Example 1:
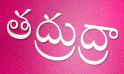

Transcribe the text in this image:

తద్రుద్రా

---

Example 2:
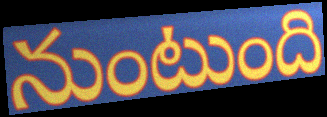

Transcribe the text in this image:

నుంటుంది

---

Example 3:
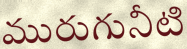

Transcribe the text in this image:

మురుగునీటి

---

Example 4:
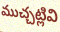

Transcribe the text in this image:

ముచ్చట్లివి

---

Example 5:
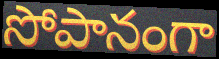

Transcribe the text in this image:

సోపానంగా